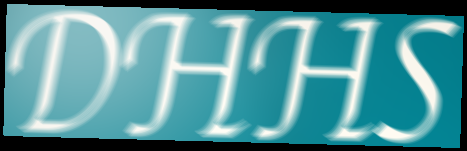
DHHS